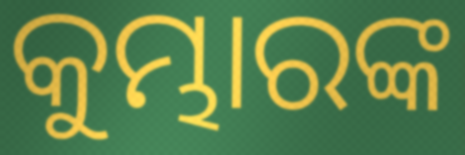
କୁମ୍ଭାରଙ୍କ